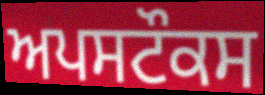
ਅਪਸਟੌਕਸ